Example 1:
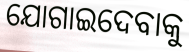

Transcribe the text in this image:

ଯୋଗାଇଦେବାକୁ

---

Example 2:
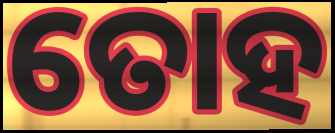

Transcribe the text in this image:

ତୋହ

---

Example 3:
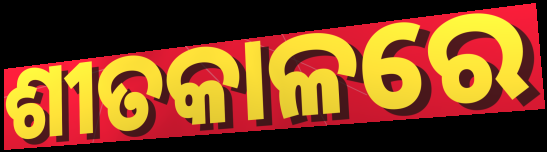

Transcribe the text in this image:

ଶୀତକାଳରେ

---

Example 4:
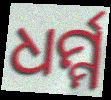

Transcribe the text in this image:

ଧର୍ମ୍ମ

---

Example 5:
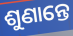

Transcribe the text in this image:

ଶୁଣାନ୍ତେ